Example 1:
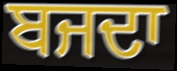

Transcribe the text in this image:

ਬਜਦਾ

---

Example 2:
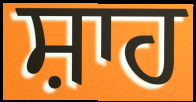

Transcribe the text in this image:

ਸ਼ਾਹ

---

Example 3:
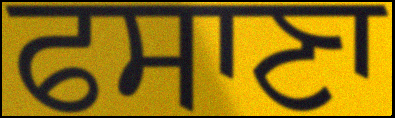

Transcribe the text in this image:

ਫਸਾਣਾ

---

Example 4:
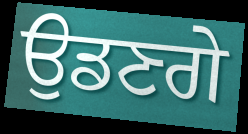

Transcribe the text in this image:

ਉਡਣਗੇ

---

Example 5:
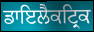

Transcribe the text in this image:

ਡਾਇਲੈਕਟ੍ਰਿਕ